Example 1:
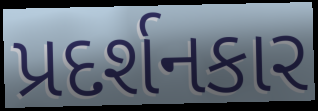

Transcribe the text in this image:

પ્રદર્શનકાર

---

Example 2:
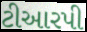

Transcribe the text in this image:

ટીઆરપી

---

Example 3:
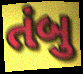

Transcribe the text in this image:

તંબુ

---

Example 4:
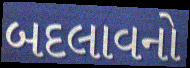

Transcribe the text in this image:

બદલાવનો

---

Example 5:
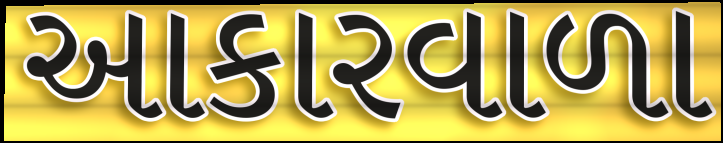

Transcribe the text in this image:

આકારવાળા